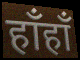
हाँहाँ